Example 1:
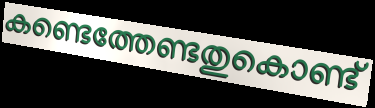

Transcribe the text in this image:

കണ്ടെത്തേണ്ടതുകൊണ്ട്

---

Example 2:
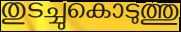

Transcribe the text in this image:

തുടച്ചുകൊടുത്തു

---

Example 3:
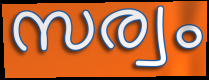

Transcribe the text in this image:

സര്വം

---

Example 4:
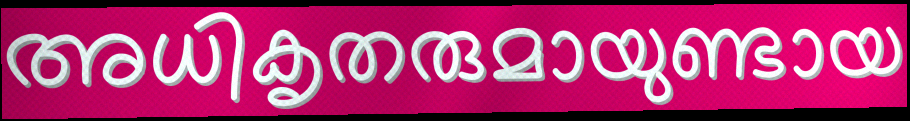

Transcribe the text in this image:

അധികൃതരുമായുണ്ടായ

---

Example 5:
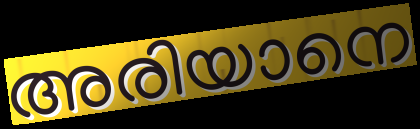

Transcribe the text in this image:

അരിയാനെ